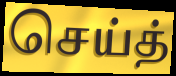
செய்த்